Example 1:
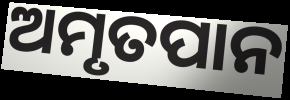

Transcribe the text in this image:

ଅମୃତପାନ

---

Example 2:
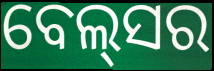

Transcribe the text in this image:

ବେଲ୍‌ସର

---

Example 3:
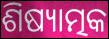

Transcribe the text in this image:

ଶିଷ୍ୟାତ୍ମକ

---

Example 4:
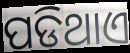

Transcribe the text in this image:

ପଡିଥାଏ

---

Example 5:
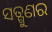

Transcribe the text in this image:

ସତ୍ଗୁଣର